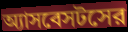
অ্যাসবেসটসের